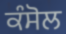
ਕੰਸੋਲ